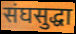
संघसुद्धा